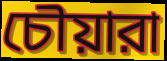
চৌয়ারা